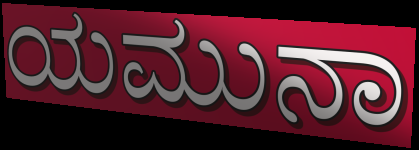
ಯಮುನಾ